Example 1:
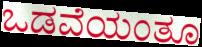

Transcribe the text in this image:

ಒಡವೆಯಂತೂ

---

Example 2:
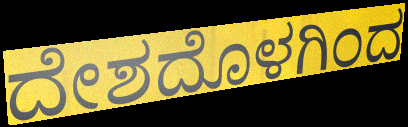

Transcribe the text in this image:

ದೇಶದೊಳಗಿಂದ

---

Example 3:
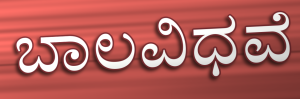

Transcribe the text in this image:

ಬಾಲವಿಧವೆ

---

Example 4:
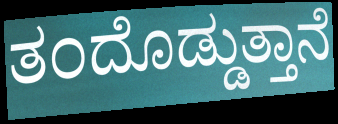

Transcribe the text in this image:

ತಂದೊಡ್ಡುತ್ತಾನೆ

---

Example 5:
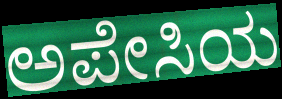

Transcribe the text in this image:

ಅಪೇಸಿಯ